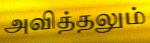
அவித்தலும்